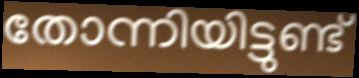
തോന്നിയിട്ടുണ്ട്